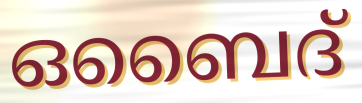
ഒബൈദ്